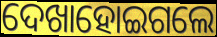
ଦେଖାହୋଇଗଲେ